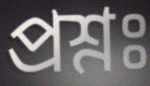
প্ৰশ্নঃ